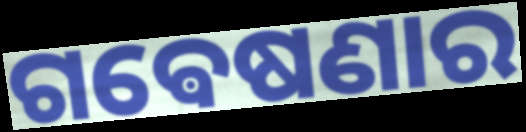
ଗଵେଷଣାର